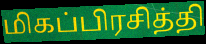
மிகப்பிரசித்தி